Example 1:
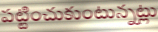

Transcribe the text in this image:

పట్టించుకుంటున్నట్లు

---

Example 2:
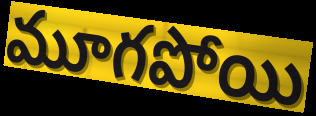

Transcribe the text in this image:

మూగపోయి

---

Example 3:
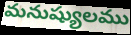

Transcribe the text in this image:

మనుష్యులము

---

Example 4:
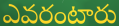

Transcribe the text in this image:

ఎవరంటారు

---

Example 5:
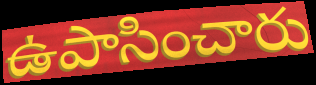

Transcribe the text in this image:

ఉపాసించారు